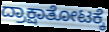
ದ್ರಾಕ್ಷಾತೋಟಕ್ಕೆ